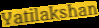
Yatilakshan